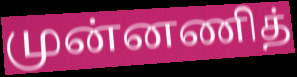
முன்னணித்